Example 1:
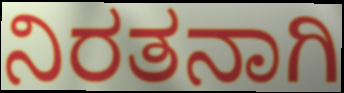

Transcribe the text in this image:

ನಿರತನಾಗಿ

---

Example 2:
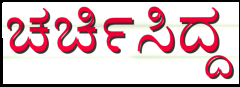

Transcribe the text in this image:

ಚರ್ಚಿಸಿದ್ದ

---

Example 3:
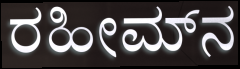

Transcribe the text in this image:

ರಹೀಮ್‌ನ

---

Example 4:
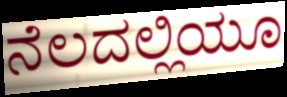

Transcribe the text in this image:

ನೆಲದಲ್ಲಿಯೂ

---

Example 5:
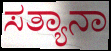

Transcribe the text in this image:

ಸತ್ಯಾನಾ